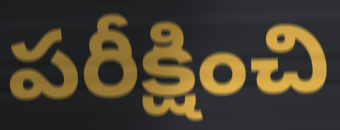
పరీక్షించి